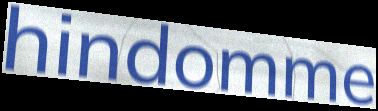
hindomme